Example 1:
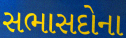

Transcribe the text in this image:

સભાસદોના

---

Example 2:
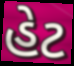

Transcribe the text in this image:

હેટ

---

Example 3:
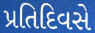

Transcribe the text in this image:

પ્રતિદિવસે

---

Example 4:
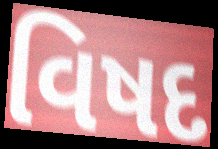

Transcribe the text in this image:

વિષદ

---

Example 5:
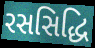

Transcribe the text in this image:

રસસિદ્ધિ